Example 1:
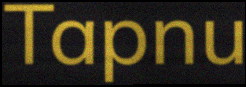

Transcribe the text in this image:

Tapnu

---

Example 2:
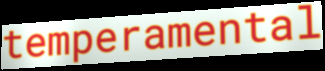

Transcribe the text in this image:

temperamental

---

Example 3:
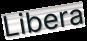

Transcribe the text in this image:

Libera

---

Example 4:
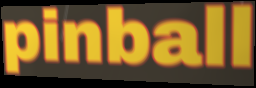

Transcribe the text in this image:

pinball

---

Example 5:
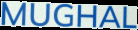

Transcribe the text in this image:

MUGHAL